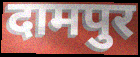
दामपुर